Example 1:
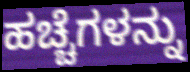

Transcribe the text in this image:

ಹಚ್ಚೆಗಳನ್ನು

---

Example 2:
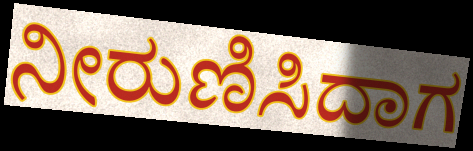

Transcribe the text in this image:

ನೀರುಣಿಸಿದಾಗ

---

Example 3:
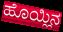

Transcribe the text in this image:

ಹೊಯ್ಲಿನ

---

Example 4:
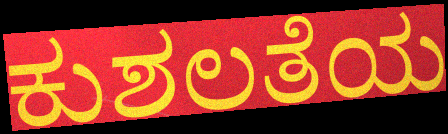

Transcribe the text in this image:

ಕುಶಲತೆಯ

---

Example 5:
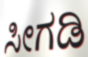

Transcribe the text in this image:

ಸೀಗಡಿ